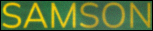
SAMSON